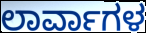
ಲಾರ್ವಾಗಳ